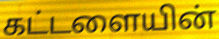
கட்டளையின்